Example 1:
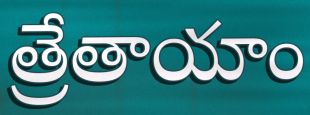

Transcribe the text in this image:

త్రేతాయాం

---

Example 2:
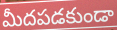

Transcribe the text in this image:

మీదపడకుండా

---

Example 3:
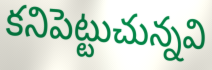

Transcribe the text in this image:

కనిపెట్టుచున్నవి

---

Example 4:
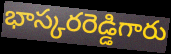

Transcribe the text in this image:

భాస్కరరెడ్డిగారు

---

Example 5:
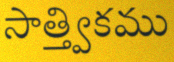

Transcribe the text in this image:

సాత్త్వికము